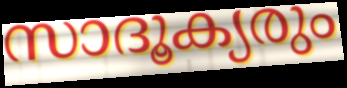
സാദൂക്യരും